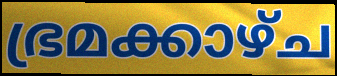
ഭ്രമക്കാഴ്ച